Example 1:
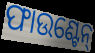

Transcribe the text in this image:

ଫାଉଣ୍ଟେନ୍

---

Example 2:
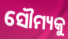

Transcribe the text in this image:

ସୌମ୍ୟକୁ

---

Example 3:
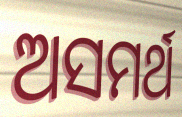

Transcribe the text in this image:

ଅସମର୍ଥ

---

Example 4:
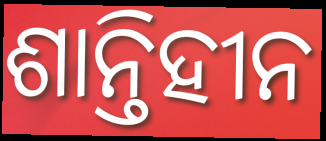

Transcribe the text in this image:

ଶାନ୍ତିହୀନ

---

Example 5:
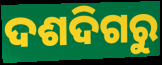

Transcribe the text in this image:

ଦଶଦିଗରୁ